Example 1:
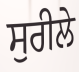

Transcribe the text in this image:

ਸੁਰੀਲੇ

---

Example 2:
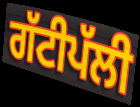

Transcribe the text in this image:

ਗੱਟੀਪੱਲੀ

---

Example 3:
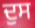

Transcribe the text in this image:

ਦੁਸ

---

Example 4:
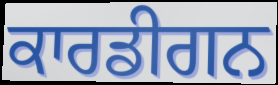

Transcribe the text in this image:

ਕਾਰਡੀਗਨ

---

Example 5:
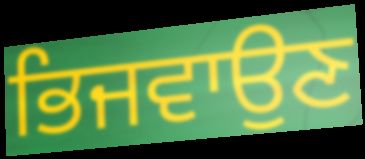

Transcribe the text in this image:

ਭਿਜਵਾਉਣ